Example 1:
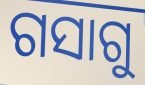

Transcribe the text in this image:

ଗସାଗୁ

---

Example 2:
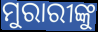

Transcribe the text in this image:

ମୁରାରୀଙ୍କୁ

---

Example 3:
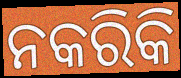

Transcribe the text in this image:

ନକରିକି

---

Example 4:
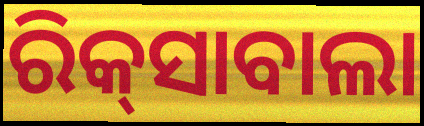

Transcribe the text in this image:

ରିକ୍‌ସାବାଲା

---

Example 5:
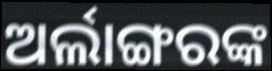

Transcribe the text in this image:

ଅର୍ଲାଙ୍ଗରଙ୍କ